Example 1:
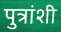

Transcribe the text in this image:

पुत्रांशी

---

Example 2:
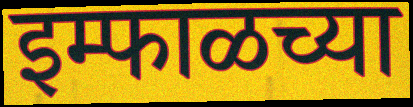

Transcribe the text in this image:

इम्फाळच्या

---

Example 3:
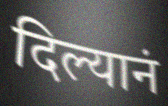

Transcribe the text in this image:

दिल्यानं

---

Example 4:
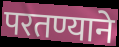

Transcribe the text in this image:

परतण्याने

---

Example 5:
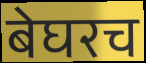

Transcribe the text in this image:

बेघरच